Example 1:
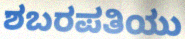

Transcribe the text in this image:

ಶಬರಪತಿಯು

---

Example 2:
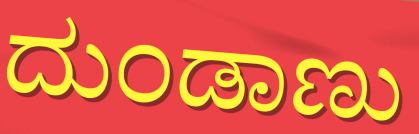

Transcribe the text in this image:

ದುಂಡಾಣು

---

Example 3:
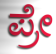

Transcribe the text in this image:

ಪ್ರೇ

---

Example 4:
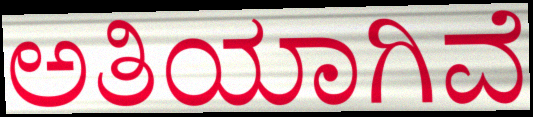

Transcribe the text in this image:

ಅತಿಯಾಗಿವೆ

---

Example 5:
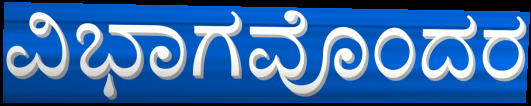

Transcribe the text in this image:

ವಿಭಾಗವೊಂದರ